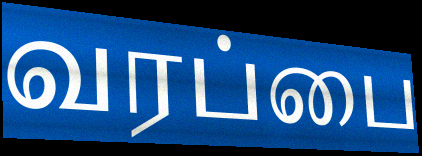
வரப்பை